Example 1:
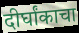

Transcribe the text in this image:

दीर्घांकाचा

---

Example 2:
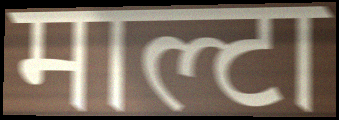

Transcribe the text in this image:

माल्टा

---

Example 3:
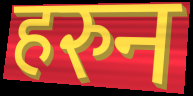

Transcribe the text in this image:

हरुन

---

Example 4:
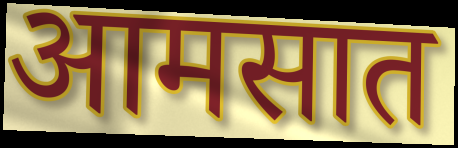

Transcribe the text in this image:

आमसात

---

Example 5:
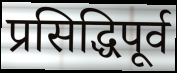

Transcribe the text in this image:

प्रसिद्धिपूर्व